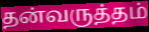
தன்வருத்தம்